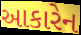
આકારેન